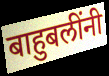
बाहुबलींनी